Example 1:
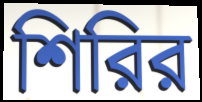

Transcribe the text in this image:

শিরির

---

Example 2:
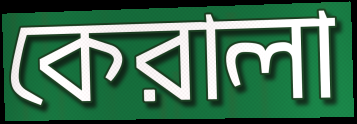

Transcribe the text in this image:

কেরালা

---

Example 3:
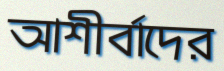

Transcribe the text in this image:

আশীর্বাদের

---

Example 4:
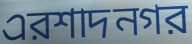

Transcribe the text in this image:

এরশাদনগর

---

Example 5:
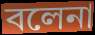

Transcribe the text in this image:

বলেনা